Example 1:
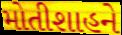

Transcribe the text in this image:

મોતીશાહને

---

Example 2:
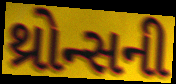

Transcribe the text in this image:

થ્રોન્સની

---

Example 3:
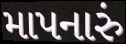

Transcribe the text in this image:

માપનારું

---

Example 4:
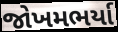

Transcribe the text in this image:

જોખમભર્યા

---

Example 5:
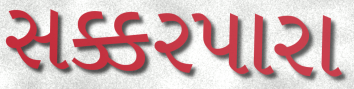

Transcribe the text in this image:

સક્કરપારા